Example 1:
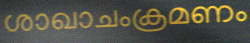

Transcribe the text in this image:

ശാഖാചംക്രമണം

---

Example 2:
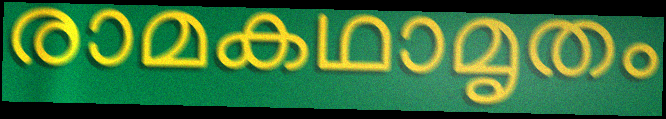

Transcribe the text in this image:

രാമകഥാമൃതം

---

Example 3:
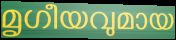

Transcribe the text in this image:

മൃഗീയവുമായ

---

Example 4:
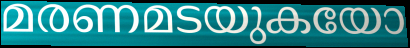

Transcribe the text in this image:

മരണമടയുകയോ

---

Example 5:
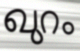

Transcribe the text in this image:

ഖുറം